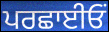
ਪਰਛਾਈਓਂ